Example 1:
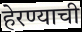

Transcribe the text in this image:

हेरण्याची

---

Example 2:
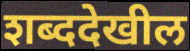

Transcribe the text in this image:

शब्ददेखील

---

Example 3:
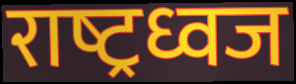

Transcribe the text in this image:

राष्ट्रध्वज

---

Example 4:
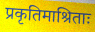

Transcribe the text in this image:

प्रकृतिमाश्रिताः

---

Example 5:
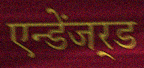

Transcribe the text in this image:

एन्डेंजर्ड